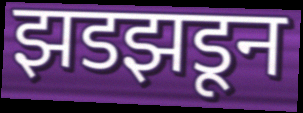
झडझडून